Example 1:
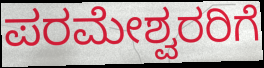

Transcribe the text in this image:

ಪರಮೇಶ್ವರರಿಗೆ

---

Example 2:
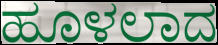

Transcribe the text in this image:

ಹೂಳಲಾದ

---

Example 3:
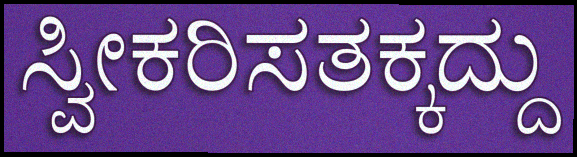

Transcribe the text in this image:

ಸ್ವೀಕರಿಸತಕ್ಕದ್ದು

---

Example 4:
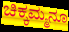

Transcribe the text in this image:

ಚಿಕ್ಕಮ್ಮನೂ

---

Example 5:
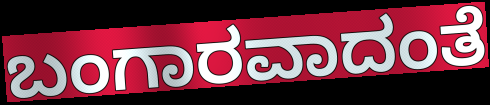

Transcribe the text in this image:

ಬಂಗಾರವಾದಂತೆ